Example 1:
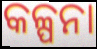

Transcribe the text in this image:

କଳ୍ପନା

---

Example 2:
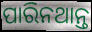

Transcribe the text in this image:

ପାରିନଥାନ୍ତ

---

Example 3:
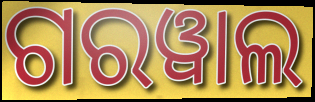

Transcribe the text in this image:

ଗରୱାଲ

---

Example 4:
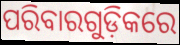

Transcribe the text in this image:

ପରିବାରଗୁଡ଼ିକରେ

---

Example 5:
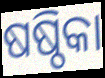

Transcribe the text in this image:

ଷଷ୍ଠିକା